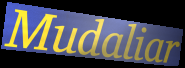
Mudaliar